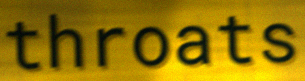
throats